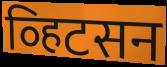
व्हिटसन